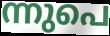
ന്നുപെ